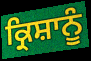
ਕ੍ਰਿਸ਼ਾਨੂੰ